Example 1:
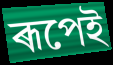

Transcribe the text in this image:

ৰূপেই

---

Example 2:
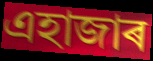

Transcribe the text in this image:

এহাজাৰ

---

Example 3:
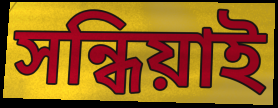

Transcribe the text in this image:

সন্ধিয়াই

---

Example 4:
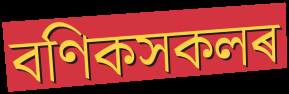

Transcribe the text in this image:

বণিকসকলৰ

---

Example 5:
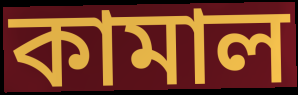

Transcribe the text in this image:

কামাল